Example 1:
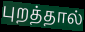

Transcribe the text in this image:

புறத்தால்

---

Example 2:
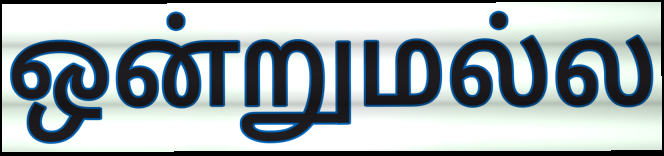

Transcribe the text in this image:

ஒன்றுமல்ல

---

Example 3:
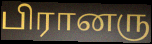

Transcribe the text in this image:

பிரானரு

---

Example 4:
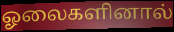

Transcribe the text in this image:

ஓலைகளினால்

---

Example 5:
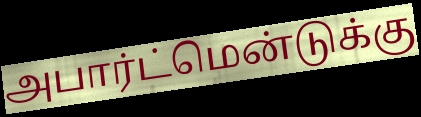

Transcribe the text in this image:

அபார்ட்மென்டுக்கு